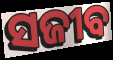
ସଜୀବ